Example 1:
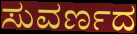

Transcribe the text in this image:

ಸುವರ್ಣದ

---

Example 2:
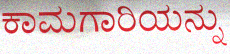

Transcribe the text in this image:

ಕಾಮಗಾರಿಯನ್ನು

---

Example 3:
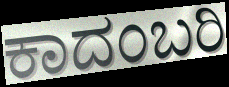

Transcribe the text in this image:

ಕಾದಂಬರಿ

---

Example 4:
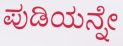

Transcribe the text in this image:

ಪುಡಿಯನ್ನೇ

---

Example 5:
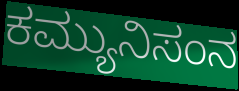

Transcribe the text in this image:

ಕಮ್ಯುನಿಸಂನ